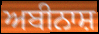
ਅਬੀਨਾਸ਼